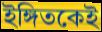
ইঙ্গিতকেই